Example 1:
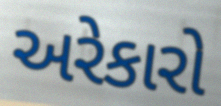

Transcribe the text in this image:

અરેકારો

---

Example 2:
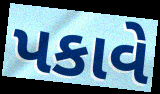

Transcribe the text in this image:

પકાવે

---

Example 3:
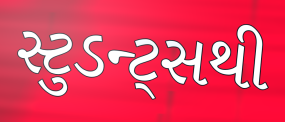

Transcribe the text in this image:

સ્ટુડન્ટ્સથી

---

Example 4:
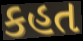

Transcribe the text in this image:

કહત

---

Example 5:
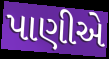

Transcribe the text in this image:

પાણીએ